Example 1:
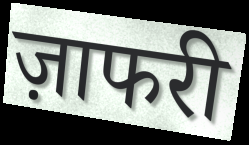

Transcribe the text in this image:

ज़ाफरी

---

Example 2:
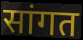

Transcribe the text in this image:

सांगत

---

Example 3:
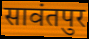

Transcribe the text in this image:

सावंतपुर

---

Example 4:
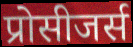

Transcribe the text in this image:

प्रोसीजर्स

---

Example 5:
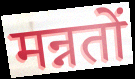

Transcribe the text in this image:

मन्नतों